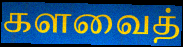
களவைத்